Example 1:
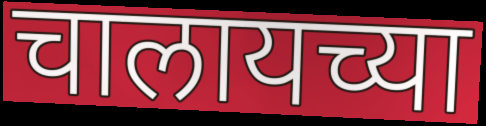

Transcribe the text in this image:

चालायच्या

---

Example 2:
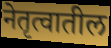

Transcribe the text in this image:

नेतृत्वातील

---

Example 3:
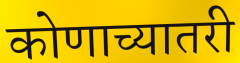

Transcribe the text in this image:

कोणाच्यातरी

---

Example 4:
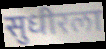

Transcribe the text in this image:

सुधीरला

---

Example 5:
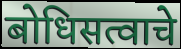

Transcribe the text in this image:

बोधिसत्वाचे